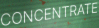
CONCENTRATE